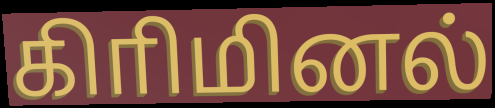
கிரிமினல்